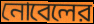
নোবেলের